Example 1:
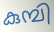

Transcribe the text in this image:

കുമ്പി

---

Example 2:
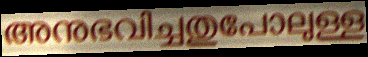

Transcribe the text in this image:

അനുഭവിച്ചതുപോലുള്ള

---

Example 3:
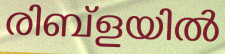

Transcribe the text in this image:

രിബ്ളയിൽ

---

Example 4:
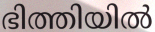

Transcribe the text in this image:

ഭിത്തിയിൽ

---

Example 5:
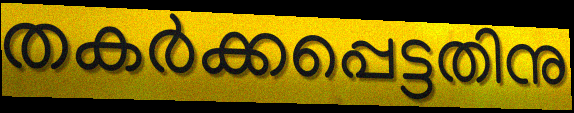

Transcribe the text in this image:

തകർക്കപ്പെട്ടതിനു